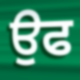
ਉਫ